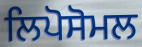
ਲਿਪੋਸੋਮਲ